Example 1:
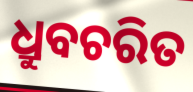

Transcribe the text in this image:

ଧ୍ରୁବଚରିତ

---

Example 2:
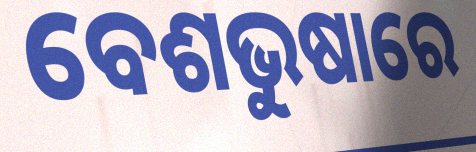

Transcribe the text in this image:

ବେଶଭୁଷାରେ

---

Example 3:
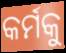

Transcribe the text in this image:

କର୍ମକୁ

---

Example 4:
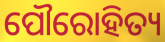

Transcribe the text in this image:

ପୌରୋହିତ୍ୟ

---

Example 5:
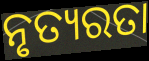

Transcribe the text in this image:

ନୃତ୍ୟରତା